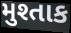
મુશ્તાક